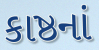
કાષ્ઠનાં